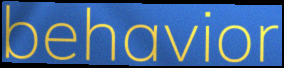
behavior